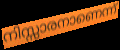
നിസ്സാരനാണെന്ന്